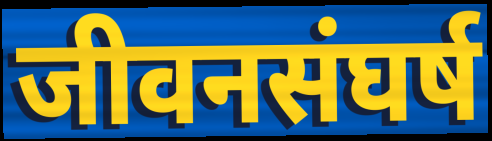
जीवनसंघर्ष